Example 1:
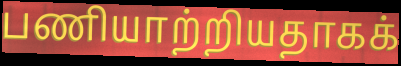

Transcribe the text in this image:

பணியாற்றியதாகக்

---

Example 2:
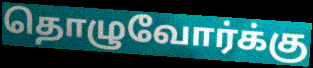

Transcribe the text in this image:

தொழுவோர்க்கு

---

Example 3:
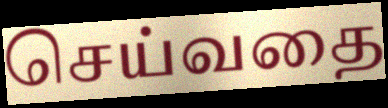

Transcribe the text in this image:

செய்வதை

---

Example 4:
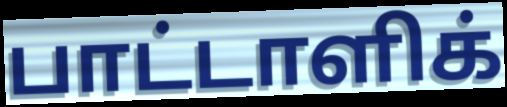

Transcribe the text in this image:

பாட்டாளிக்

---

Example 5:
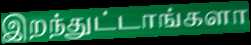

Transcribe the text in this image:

இறந்துட்டாங்களா